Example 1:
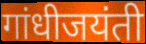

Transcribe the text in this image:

गांधीजयंती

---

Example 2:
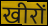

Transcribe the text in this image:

खीरों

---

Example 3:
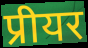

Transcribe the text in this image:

प्रीयर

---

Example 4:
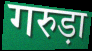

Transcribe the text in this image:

गरुड़ा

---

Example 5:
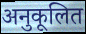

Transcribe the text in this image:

अनुकूलित